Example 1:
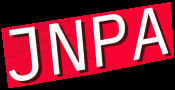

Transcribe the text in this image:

JNPA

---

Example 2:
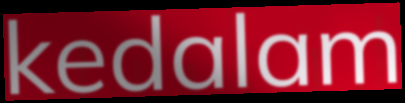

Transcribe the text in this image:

kedalam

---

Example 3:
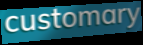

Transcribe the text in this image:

customary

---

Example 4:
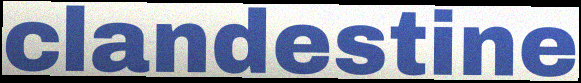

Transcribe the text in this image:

clandestine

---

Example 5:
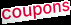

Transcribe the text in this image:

coupons